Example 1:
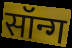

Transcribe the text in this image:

सॉन्ग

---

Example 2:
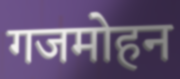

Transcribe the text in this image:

गजमोहन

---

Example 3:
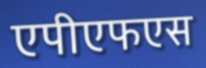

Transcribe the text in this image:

एपीएफएस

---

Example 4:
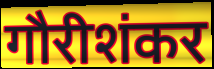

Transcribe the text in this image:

गौरीशंकर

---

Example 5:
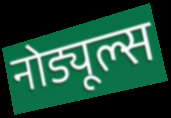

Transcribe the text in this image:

नोड्यूल्स